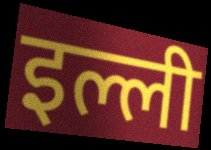
इल्ली